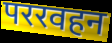
पररवहन